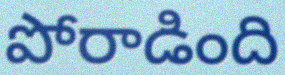
పోరాడింది